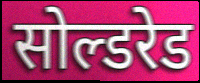
सोल्डरेड